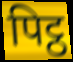
पिट्ठ